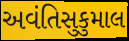
અવંતિસુકુમાલ